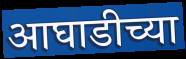
आघाडीच्‍या